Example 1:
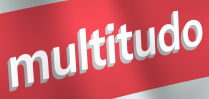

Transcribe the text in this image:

multitudo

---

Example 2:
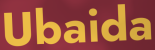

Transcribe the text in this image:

Ubaida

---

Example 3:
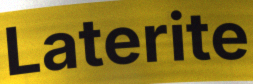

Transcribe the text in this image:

Laterite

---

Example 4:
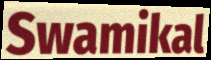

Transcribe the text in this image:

Swamikal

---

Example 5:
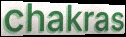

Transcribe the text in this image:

chakras